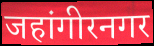
जहांगीरनगर